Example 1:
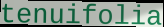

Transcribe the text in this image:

tenuifolia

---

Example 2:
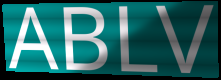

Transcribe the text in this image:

ABLV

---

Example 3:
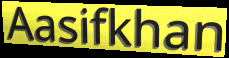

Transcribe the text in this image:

Aasifkhan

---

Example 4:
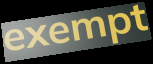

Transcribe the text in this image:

exempt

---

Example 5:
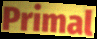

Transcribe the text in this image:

Primal